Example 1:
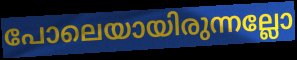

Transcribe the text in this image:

പോലെയായിരുന്നല്ലോ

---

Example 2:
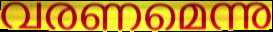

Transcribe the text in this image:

വരണമെന്നു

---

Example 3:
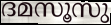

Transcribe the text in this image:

ദമസൂസു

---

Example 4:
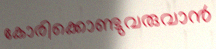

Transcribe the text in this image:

കോരിക്കൊണ്ടുവരുവാൻ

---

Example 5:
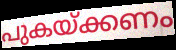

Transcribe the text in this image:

പുകയ്ക്കണം